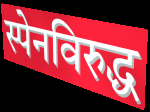
स्पेनविरुद्ध